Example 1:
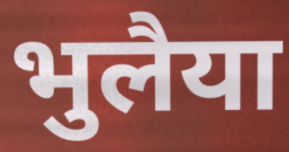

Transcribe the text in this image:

भुलैया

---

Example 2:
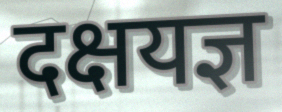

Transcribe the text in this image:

दक्षयज्ञ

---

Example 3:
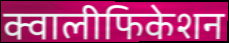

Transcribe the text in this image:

क्वालीफिकेशन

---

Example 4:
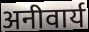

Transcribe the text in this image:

अनीवार्य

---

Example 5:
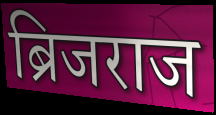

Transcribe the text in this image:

ब्रिजराज